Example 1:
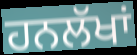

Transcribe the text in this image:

ਹਨਲੱਖਾਂ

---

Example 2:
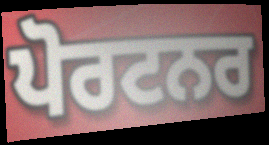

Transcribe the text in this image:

ਪੋਰਟਨਰ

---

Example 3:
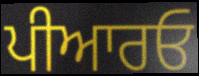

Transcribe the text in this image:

ਪੀਆਰਓ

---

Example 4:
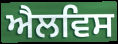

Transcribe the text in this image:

ਐਲਵਿਸ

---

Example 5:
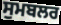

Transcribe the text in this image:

ਸੁਮਬਲਰ